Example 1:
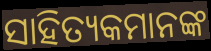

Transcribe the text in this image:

ସାହିତ୍ୟକମାନଙ୍କ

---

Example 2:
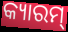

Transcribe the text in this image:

କ୍ୟାରମ୍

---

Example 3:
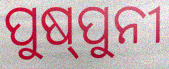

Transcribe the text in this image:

ପୁଷ୍‌ପୁନୀ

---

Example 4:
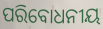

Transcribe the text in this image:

ପରିବୋଧନୀୟ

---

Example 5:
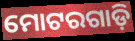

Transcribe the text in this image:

ମୋଟରଗାଡ଼ି